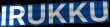
IRUKKU